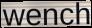
wench